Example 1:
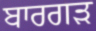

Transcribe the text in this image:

ਬਾਰਗੜ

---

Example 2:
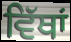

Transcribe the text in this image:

ਵਿੱਥਾਂ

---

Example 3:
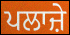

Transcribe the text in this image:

ਪਲਾਜ਼ੇ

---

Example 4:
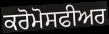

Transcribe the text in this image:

ਕਰੋਮੋਸਫੀਅਰ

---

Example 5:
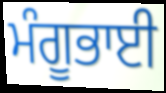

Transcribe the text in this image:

ਮੰਗੂਭਾਈ